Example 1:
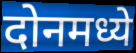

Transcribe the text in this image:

दोनमध्ये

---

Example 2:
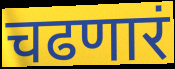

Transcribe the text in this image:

चढणारं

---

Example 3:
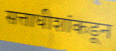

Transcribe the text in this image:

सत्ताधीशांकडून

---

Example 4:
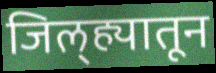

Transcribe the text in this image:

जिल्ह्यातून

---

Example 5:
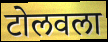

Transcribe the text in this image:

टोलवला